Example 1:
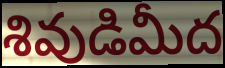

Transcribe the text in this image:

శివుడిమీద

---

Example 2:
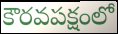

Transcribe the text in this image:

కౌరవపక్షంలో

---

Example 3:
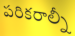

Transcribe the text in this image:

పరికరాల్నీ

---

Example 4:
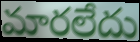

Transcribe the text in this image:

మారలేదు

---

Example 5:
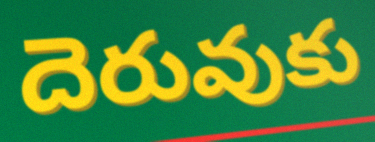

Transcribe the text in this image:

దెరువుకు